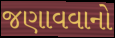
જણાવવાનો